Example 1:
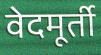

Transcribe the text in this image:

वेदमूर्ती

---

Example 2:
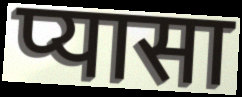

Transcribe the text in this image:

प्यासा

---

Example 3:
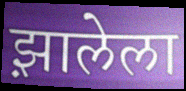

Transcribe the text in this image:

झ़ालेला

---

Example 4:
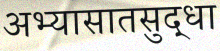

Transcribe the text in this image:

अभ्यासातसुद्धा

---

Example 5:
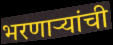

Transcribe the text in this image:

भरणाऱ्यांची